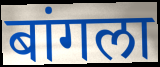
बांगला